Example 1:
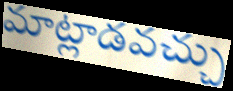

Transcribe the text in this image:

మాట్లాడవచ్చు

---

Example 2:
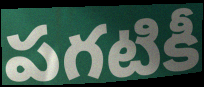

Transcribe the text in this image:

పగటికీ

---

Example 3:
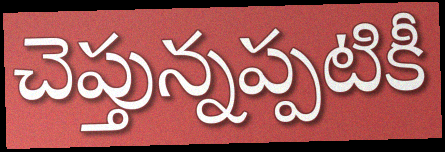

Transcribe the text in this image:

చెప్తున్నప్పటికీ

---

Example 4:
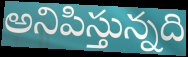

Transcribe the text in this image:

అనిపిస్తున్నది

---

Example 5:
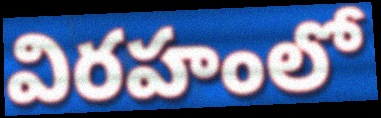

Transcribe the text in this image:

విరహంలో